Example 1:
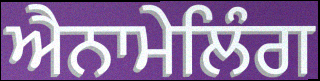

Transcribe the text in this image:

ਐਨਾਮੇਲਿੰਗ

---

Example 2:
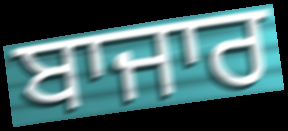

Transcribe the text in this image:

ਬਾਜਾਰ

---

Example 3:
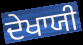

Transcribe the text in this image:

ਦੇਖਾਯੀ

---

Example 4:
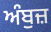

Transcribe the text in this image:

ਅੰਬੁਜ਼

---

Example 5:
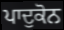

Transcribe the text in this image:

ਪਾਦੁਕੋਨ